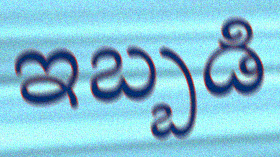
ఇబ్బడి